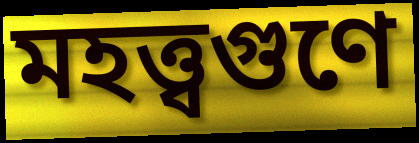
মহত্ত্বগুণে